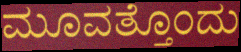
ಮೂವತ್ತೊಂದು